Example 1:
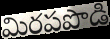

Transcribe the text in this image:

మిరపపొడి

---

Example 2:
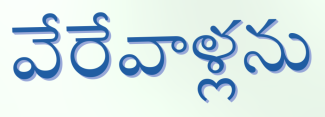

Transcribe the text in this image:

వేరేవాళ్లను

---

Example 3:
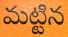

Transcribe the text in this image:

మట్టిన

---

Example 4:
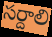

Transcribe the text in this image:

సర్దాలి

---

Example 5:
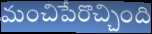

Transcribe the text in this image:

మంచిపేరొచ్చింది